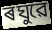
ৰঘুৱে